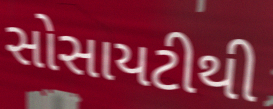
સોસાયટીથી